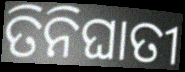
ତିନିଘାତୀ